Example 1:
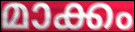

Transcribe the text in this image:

മാക്കം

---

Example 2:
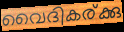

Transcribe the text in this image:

വൈദികര്ക്കു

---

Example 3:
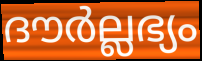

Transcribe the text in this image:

ദൗർല്ലഭ്യം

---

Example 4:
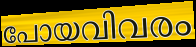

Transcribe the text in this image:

പോയവിവരം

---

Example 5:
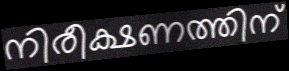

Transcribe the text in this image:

നിരീക്ഷണത്തിന്